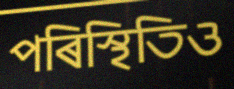
পৰিস্থিতিও